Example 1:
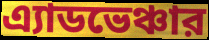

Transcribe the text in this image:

এ্যাডভেঞ্চার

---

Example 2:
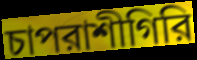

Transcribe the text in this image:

চাপরাশীগিরি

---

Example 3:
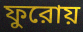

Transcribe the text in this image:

ফুরোয়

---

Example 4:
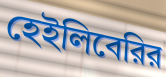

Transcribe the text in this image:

হেইলিবেরির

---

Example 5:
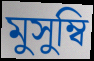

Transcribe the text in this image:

মুসুম্বি